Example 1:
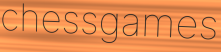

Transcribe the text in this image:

chessgames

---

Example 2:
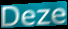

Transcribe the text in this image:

Deze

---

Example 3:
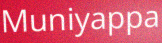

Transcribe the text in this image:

Muniyappa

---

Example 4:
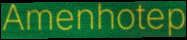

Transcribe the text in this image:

Amenhotep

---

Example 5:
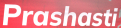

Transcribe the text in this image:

Prashasti